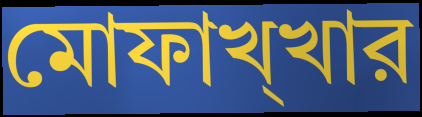
মোফাখ্খার